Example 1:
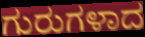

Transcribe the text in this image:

ಗುರುಗಳಾದ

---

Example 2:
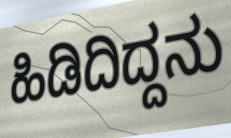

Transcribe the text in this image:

ಹಿಡಿದಿದ್ದನು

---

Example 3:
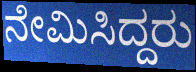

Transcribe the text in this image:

ನೇಮಿಸಿದ್ದರು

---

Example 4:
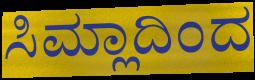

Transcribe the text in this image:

ಸಿಮ್ಲಾದಿಂದ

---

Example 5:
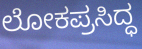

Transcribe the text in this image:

ಲೋಕಪ್ರಸಿದ್ಧ